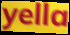
yella